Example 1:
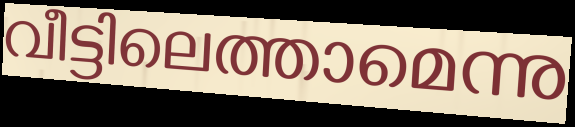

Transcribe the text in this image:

വീട്ടിലെത്താമെന്നു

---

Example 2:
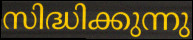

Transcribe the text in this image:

സിദ്ധിക്കുന്നു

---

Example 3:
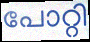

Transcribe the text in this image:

പോറ്റി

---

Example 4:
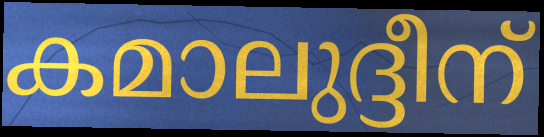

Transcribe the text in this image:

കമാലുദ്ദീന്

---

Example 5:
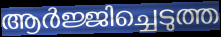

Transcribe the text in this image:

ആർജ്ജിച്ചെടുത്ത